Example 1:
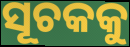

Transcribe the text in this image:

ସୂଚକକୁ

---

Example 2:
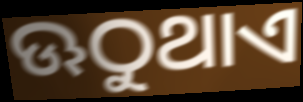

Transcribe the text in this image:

ଊଠୁଥାଏ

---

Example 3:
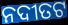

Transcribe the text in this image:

ନଦୀତଟ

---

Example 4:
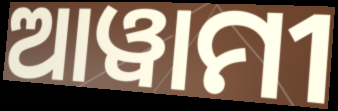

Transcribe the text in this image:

ଆୱାମୀ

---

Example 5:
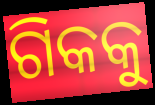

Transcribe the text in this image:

ଗିକକୁ